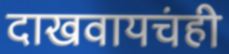
दाखवायचंही